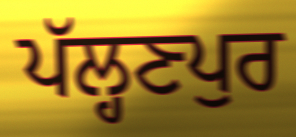
ਪੱਲ੍ਹਣਪੁਰ